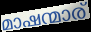
മാഷന്മാര്